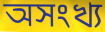
অসংখ্য